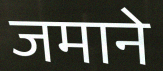
जमाने